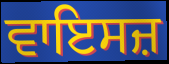
ਵਾਇਸਜ਼